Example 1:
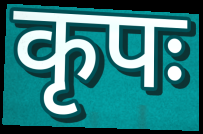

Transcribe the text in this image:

कृपः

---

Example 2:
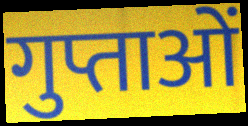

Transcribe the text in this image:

गुप्ताओं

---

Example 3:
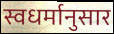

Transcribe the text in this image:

स्वधर्मानुसार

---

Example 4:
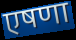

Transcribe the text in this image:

एषणा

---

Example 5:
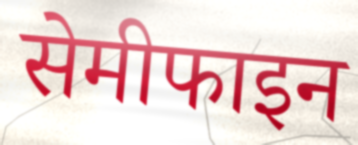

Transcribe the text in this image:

सेमीफाइन